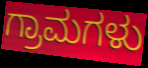
ಗ್ರಾಮಗಳು